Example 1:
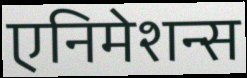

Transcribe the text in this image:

एनिमेशन्स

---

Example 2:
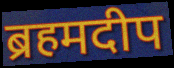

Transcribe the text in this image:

ब्रहमदीप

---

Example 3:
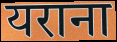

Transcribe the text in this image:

यराना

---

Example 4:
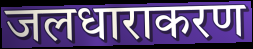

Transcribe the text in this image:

जलधाराकरण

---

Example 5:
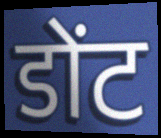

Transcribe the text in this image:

डोंट